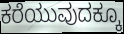
ಕರೆಯುವುದಕ್ಕೂ